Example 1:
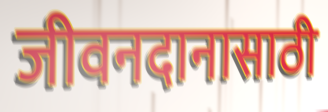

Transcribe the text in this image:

जीवनदानासाठी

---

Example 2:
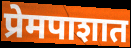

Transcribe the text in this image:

प्रेमपाशात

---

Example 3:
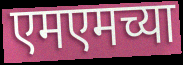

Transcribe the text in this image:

एमएमच्या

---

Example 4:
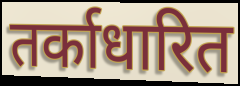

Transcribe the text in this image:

तर्काधारित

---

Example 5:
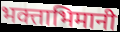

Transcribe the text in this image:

भक्ताभिमानी